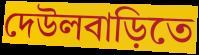
দেউলবাড়িতে